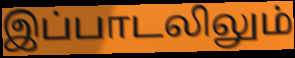
இப்பாடலிலும்